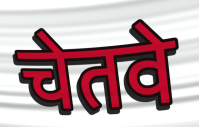
चेतवे